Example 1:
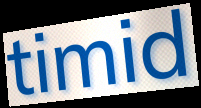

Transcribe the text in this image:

timid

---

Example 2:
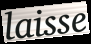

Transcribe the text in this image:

laisse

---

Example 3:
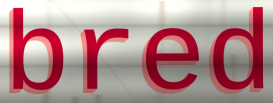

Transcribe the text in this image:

bred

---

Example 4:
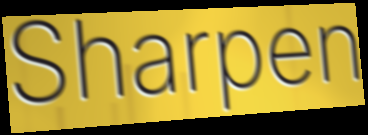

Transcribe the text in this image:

Sharpen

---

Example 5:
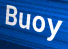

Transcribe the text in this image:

Buoy